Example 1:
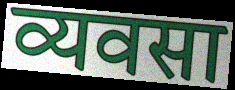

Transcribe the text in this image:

व्यवसा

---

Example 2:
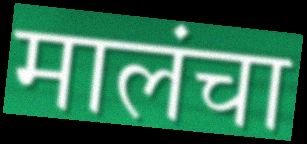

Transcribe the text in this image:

मालंचा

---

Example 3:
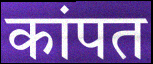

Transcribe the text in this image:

कांपत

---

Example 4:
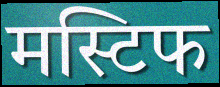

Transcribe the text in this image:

मस्टिफ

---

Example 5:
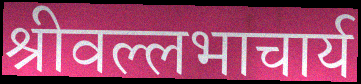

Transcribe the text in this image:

श्रीवल्लभाचार्य